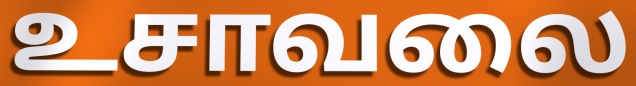
உசாவலை